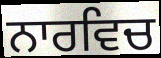
ਨਾਰਵਿਚ